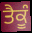
ਤੈਕੂੰ